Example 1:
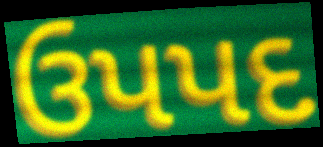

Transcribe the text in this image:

ઉપપદ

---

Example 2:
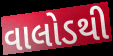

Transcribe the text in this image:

વાલોડથી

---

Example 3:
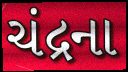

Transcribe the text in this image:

ચંદ્રના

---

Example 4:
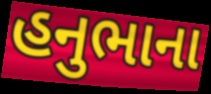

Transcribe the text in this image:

હનુભાના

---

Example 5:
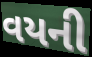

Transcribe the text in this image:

વયની